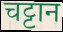
चट्टान